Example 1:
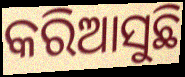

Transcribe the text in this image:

କରିଆସୁଛି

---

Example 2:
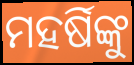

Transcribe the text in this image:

ମହର୍ଷିଙ୍କୁ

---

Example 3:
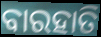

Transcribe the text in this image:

ବାରହାତି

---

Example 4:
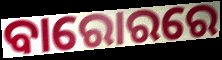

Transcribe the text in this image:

ବାରୋରରେ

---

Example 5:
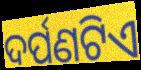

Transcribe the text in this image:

ଦର୍ପଣଟିଏ